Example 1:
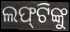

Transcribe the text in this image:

ଲଫ୍‌ଟିଙ୍କୁ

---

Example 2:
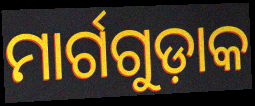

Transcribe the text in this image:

ମାର୍ଗଗୁଡ଼ାକ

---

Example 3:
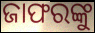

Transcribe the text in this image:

ଜାଫରଙ୍କୁ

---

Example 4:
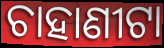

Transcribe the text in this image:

ଚାହାଣୀଟା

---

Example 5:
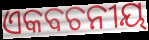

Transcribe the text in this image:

ଏକବଚନୀୟ